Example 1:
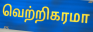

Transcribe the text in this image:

வெற்றிகரமா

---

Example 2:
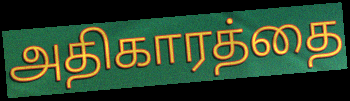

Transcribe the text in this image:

அதிகாரத்தை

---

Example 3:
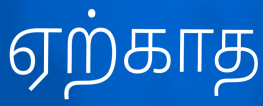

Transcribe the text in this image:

ஏற்காத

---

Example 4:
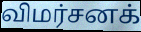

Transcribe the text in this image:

விமர்சனக்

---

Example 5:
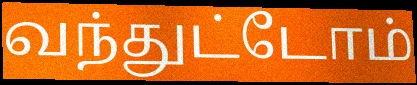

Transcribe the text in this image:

வந்துட்டோம்